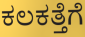
ಕಲಕತ್ತೆಗೆ